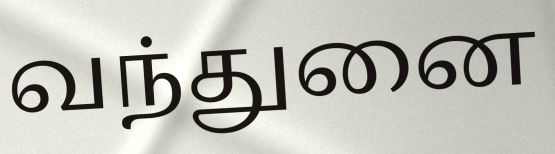
வந்துனை